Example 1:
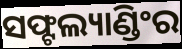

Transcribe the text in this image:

ସଫ୍ଟଲ୍ୟାଣ୍ଡିଂର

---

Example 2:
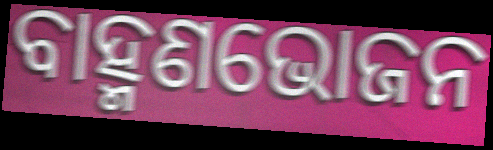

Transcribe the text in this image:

ବାହ୍ମଣଭୋଜନ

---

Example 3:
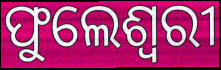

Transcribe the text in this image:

ଫୁଲେଶ୍ବରୀ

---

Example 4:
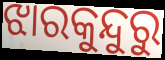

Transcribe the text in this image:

ଝାରକୁନ୍ଦୁରୁ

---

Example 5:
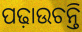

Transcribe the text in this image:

ପଢ଼ାଉଚନ୍ତି